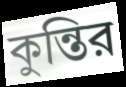
কুন্তির